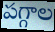
పగ్గాల